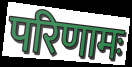
परिणामः